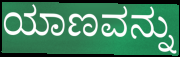
ಯಾಣವನ್ನು